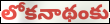
లోకనాథంకు